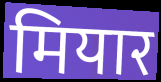
मियार